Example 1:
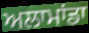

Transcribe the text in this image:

ਅਲਾਮਾਂਡਾ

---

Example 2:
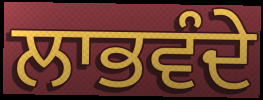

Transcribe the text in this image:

ਲਾਭਵੰਦੇ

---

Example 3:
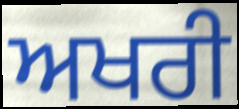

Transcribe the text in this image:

ਅਖਰੀ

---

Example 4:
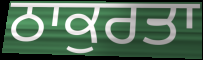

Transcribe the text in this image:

ਠਾਕੁਰਤਾ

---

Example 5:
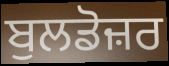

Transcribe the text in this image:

ਬੁਲਡੋਜ਼ਰ